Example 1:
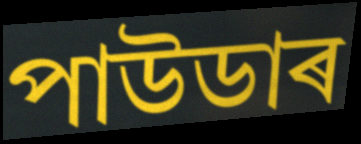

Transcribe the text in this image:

পাউডাৰ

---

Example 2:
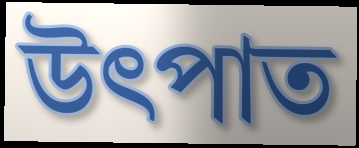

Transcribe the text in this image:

উৎপাত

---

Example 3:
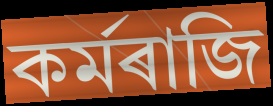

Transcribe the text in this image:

কৰ্মৰাজি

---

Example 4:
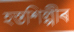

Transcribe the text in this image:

হস্তশিল্পীৰ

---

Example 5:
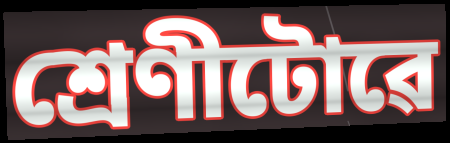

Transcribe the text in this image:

শ্ৰেণীটোৱে